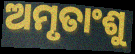
ଅମୃତାଂଶୁ